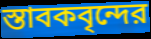
স্তাবকবৃন্দের